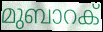
മുബാറക്